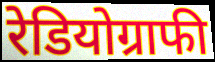
रेडियोग्राफी